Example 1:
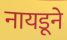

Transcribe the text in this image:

नायडूने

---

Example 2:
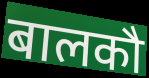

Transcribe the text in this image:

बालकौ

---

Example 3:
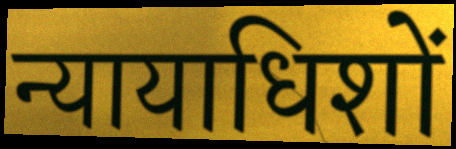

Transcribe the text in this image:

न्यायाधिशों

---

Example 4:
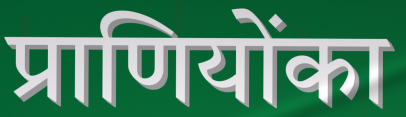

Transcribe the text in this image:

प्राणियोंका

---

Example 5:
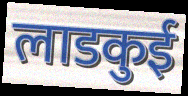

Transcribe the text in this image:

लाडकुई